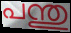
പന്തു